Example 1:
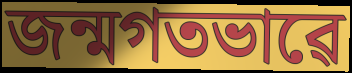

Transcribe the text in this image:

জন্মগতভাৱে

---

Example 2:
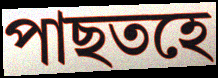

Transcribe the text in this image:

পাছতহে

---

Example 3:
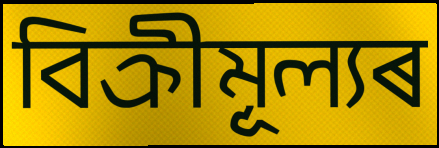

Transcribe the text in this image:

বিক্ৰীমূল্যৰ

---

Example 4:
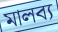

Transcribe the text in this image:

মালব্য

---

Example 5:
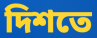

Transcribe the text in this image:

দিশতে